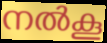
നൽകൂ